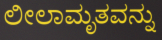
ಲೀಲಾಮೃತವನ್ನು